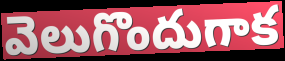
వెలుగొందుగాక